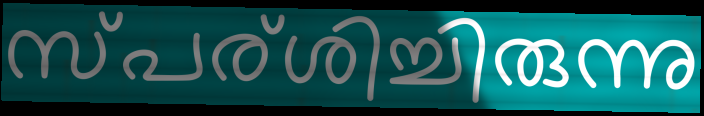
സ്പര്ശിച്ചിരുന്നു